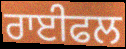
ਰਾਈਫਲ